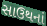
સાઉથનાં